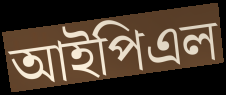
আইপিএল